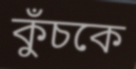
কুঁচকে